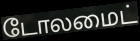
டோலமைட்